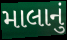
માલાનું